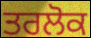
ਤਰਲੋਕ